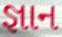
જ્ઞાન